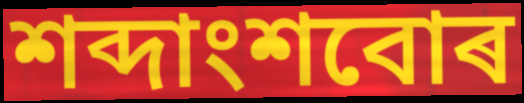
শব্দাংশবোৰ